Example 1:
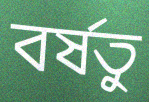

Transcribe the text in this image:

বর্ষতু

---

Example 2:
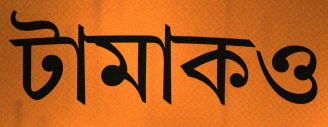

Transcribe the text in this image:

টামাকও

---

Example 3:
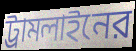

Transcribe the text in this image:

ট্রামলাইনের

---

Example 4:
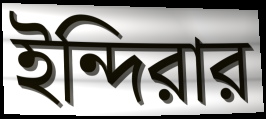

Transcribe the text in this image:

ইন্দিরার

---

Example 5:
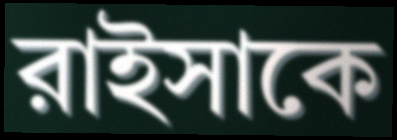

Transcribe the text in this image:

রাইসাকে